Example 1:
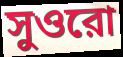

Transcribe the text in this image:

সুওরো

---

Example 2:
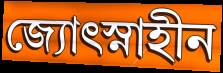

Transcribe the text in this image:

জ্যোৎস্নাহীন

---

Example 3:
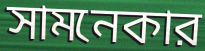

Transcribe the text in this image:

সামনেকার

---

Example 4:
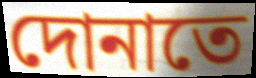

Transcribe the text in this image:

দোনাতে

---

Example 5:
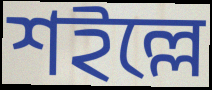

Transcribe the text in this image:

শইল্লে